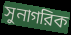
সুনাগরিক